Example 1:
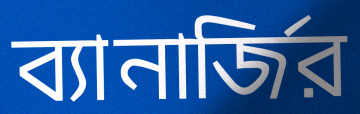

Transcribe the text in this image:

ব্যানার্জির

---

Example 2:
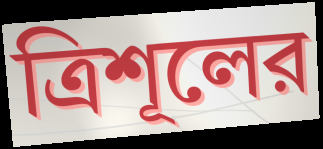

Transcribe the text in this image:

ত্রিশূলের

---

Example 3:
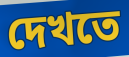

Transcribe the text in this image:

দেখতে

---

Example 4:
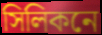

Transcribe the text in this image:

সিলিকনে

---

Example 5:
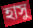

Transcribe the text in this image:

হাসু